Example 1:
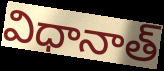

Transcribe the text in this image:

విధానాత్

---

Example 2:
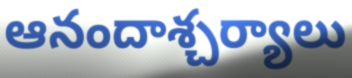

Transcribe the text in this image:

ఆనందాశ్చర్యాలు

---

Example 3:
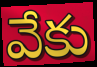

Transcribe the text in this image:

వేకు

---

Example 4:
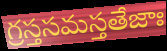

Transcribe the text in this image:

గ్రస్తసమస్తతేజాః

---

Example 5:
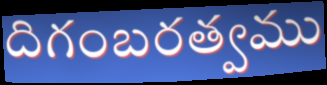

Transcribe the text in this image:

దిగంబరత్వము